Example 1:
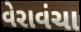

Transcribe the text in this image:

વેરાવંચા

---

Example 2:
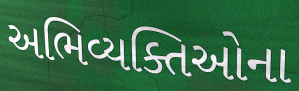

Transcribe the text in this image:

અભિવ્યક્તિઓના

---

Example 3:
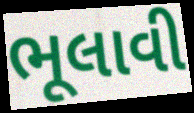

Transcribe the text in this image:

ભૂલાવી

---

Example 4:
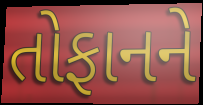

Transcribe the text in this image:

તોફાનને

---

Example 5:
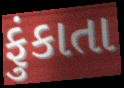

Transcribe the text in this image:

ફુંકાતા